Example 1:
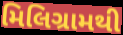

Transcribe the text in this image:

મિલિગ્રામથી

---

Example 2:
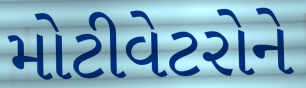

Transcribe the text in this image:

મોટીવેટરોને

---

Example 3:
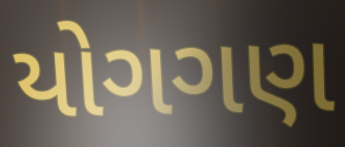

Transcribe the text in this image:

યોગગણ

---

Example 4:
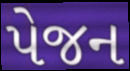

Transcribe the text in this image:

પેજન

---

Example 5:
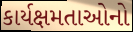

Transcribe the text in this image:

કાર્યક્ષમતાઓનો